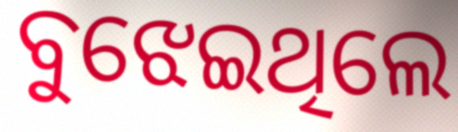
ବୁଝେଇଥିଲେ